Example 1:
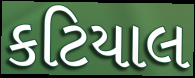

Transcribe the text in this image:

કટિયાલ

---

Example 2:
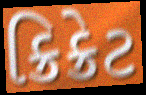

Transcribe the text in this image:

ક્રિક્રેટ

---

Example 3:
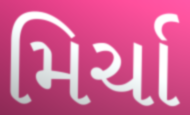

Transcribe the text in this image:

મિર્ચા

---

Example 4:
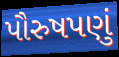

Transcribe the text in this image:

પૌરુષપણું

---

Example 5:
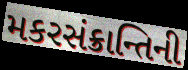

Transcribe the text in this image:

મકરસંક્રાન્તિની